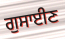
ਗੁਸਾਈਣ